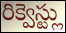
రిక్వెస్ట్లు